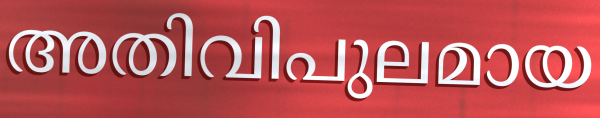
അതിവിപുലമായ